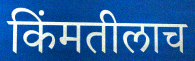
किंमतीलाच